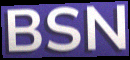
BSN